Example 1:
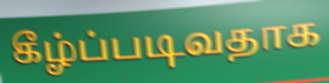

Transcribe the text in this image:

கீழ்ப்படிவதாக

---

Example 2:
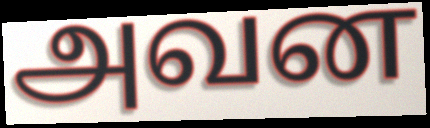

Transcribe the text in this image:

அவன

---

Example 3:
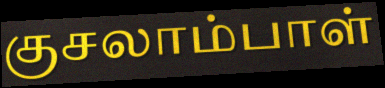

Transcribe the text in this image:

குசலாம்பாள்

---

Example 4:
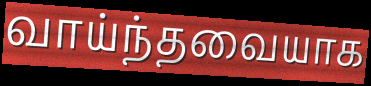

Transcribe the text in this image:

வாய்ந்தவையாக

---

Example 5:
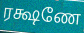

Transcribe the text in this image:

ரக்ஷணே